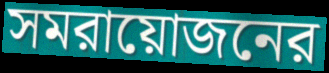
সমরায়োজনের